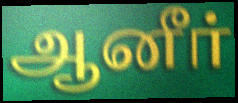
ஆனீர்